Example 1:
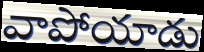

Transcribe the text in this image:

వాపోయాడు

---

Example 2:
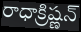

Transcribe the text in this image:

రాధాక్రిష్ణన్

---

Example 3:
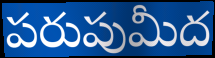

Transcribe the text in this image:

పరుపుమీద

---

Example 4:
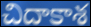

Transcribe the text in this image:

చిదాకాశ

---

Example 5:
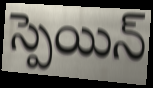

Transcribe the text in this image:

స్పెయిన్